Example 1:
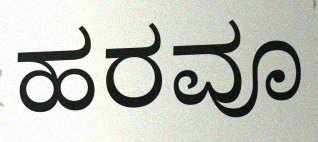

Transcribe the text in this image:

ಹರವೂ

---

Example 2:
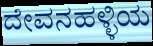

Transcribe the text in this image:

ದೇವನಹಳ್ಳಿಯ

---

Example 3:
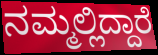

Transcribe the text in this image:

ನಮ್ಮಲ್ಲಿದ್ದಾರೆ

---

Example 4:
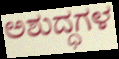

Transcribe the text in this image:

ಅಶುದ್ಧಗಳ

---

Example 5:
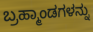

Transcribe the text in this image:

ಬ್ರಹ್ಮಾಂಡಗಳನ್ನು